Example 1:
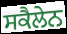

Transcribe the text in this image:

ਸਕੈਲੇਨ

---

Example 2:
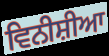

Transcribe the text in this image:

ਵਿਨੀਸ਼ੀਆ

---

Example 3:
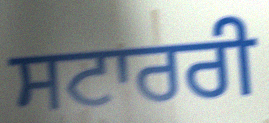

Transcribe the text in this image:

ਸਟਾਰਰੀ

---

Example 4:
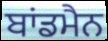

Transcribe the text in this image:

ਬਾਂਡਮੈਨ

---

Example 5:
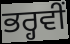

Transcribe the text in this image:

ਭਰ੍ਹਵੀਂ